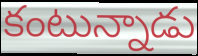
కంటున్నాడు